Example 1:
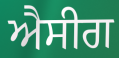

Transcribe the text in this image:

ਐਸੀਗ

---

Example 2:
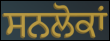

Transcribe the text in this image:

ਸਨਲੋਕਾਂ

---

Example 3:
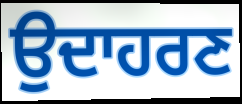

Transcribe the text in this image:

ਉਦਾਹਰਣ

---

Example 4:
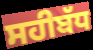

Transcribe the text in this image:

ਸਹੀਬੱਧ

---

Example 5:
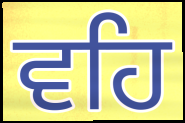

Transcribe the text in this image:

ਵਹਿ